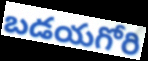
బడయగోరి